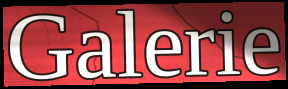
Galerie